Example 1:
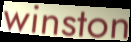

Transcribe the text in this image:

winston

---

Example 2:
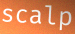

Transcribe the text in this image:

scalp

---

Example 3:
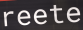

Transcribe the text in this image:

reete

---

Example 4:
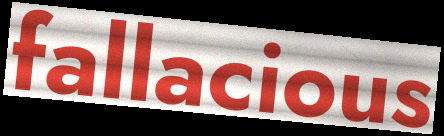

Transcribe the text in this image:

fallacious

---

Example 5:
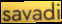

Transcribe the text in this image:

savadi